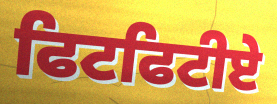
ਫਿਟਫਿਟੀਏ